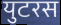
युटरस